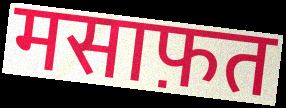
मसाफ़त